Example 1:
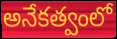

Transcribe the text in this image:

అనేకత్వంలో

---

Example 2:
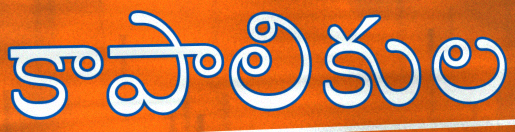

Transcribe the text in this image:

కాపాలికుల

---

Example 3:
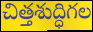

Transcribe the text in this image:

చిత్తశుద్ధిగల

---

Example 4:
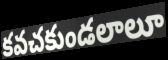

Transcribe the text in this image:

కవచకుండలాలూ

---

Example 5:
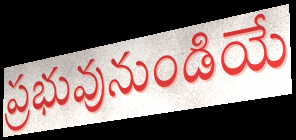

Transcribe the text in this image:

ప్రభువునుండియే